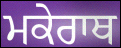
ਮਕੇਰਾਥ